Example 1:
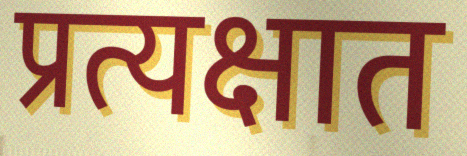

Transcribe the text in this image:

प्रत्यक्षात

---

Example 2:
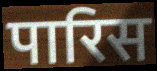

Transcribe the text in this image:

पारिस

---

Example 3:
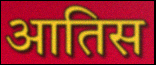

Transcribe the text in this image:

आतिस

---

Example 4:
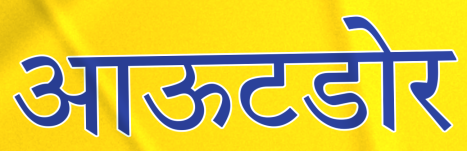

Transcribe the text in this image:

आऊटडोर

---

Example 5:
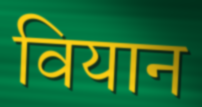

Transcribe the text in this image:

वियान